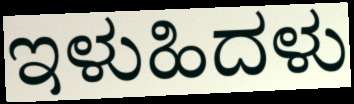
ಇಳುಹಿದಳು